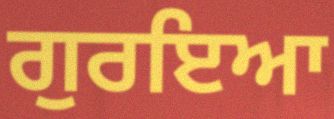
ਗੁਰਇਆ